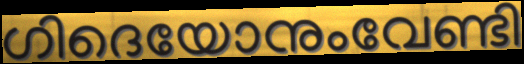
ഗിദെയോനുംവേണ്ടി